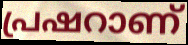
പ്രഷറാണ്